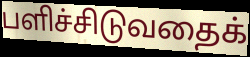
பளிச்சிடுவதைக்